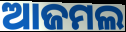
ଆଜମଲ